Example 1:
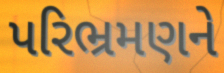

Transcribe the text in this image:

પરિભ્રમણને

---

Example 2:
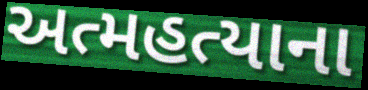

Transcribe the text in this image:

અત્મહત્યાના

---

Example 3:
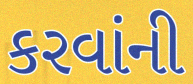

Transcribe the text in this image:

કરવાંની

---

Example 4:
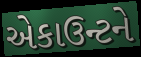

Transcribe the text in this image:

એકાઉન્ટને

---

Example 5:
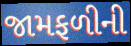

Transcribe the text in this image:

જામફળીની